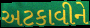
અટકાવીને